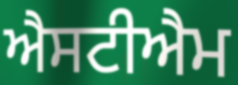
ਐਸਟੀਐਮ